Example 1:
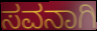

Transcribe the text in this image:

ಸವನಾಗಿ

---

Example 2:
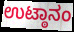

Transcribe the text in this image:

ಉಟ್ಠಾನಂ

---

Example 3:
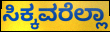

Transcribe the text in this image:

ಸಿಕ್ಕವರೆಲ್ಲಾ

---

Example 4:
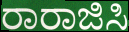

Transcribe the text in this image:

ರಾರಾಜಿಸಿ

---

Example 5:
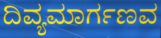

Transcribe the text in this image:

ದಿವ್ಯಮಾರ್ಗಣವ